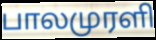
பாலமுரளி